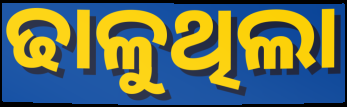
ଢାଳୁଥିଲା